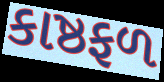
કાષ્ઠફળ